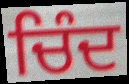
ਚਿੰਦ